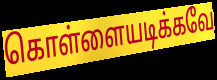
கொள்ளையடிக்கவே